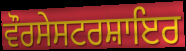
ਵੌਰਸੇਸਟਰਸ਼ਾਇਰ